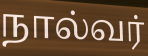
நால்வர்